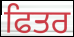
ਫਿਤਰ